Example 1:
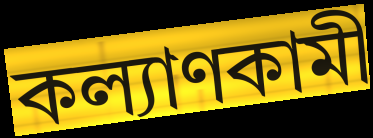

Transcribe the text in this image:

কল্যাণকামী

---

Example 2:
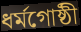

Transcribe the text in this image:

ধৰ্মগোষ্ঠী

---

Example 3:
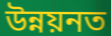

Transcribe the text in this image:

উন্নয়নত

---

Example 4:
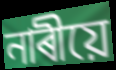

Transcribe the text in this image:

নাৰীয়ে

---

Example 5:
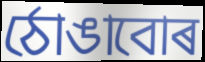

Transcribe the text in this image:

ঠোঙাবোৰ